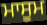
ਮਾਸੂਮ